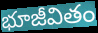
భూజీవితం